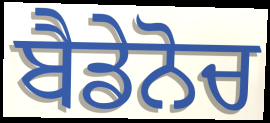
ਬੈਡੇਨੋਚ